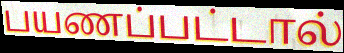
பயணப்பட்டால்